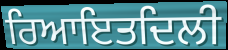
ਰਿਆਇਤਦਿਲੀ